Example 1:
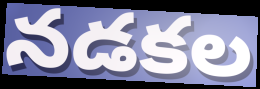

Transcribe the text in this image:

నడకల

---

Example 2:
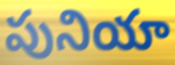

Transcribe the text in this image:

పునియా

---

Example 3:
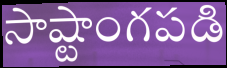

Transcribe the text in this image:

సాష్టాంగపడి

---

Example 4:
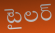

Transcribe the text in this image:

టైలర్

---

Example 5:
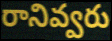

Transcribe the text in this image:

రానివ్వరు